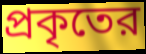
প্রকৃতের